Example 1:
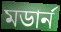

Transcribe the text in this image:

মডার্ন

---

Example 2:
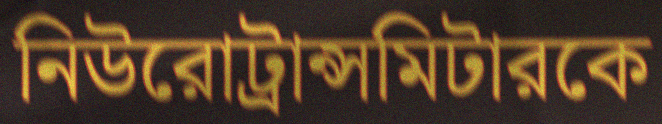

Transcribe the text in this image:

নিউরোট্রান্সমিটারকে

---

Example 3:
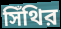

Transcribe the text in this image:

সিঁথির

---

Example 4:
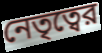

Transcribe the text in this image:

নেতৃত্বের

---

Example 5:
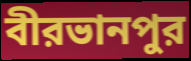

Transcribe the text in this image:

বীরভানপুর